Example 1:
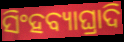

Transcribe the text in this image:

ସିଂହବ୍ୟାଘ୍ରାଦି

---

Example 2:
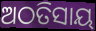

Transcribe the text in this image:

ଅଠତିସାୟ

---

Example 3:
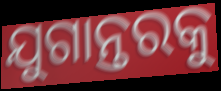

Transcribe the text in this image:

ଯୁଗାନ୍ତରକୁ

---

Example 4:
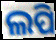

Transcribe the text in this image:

ଲପି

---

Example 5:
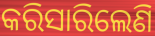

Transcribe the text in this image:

କରିସାରିଲେଣି